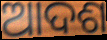
ଆଦଶ